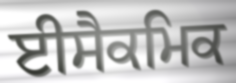
ਈਸੈਕਮਿਕ